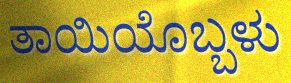
ತಾಯಿಯೊಬ್ಬಳು